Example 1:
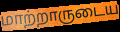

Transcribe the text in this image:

மாற்றாருடைய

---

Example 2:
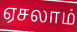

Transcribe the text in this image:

ஏசலாம்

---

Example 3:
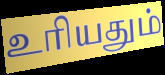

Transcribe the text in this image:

உரியதும்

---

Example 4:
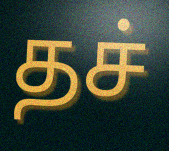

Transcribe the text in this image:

தச்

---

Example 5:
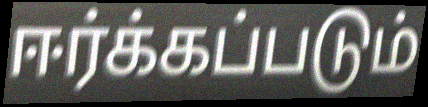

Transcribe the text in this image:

ஈர்க்கப்படும்